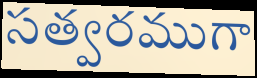
సత్వరముగా